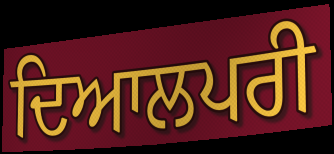
ਦਿਆਲਪਰੀ